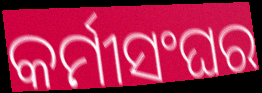
କର୍ମୀସଂଘର